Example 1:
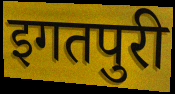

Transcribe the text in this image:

इगतपुरी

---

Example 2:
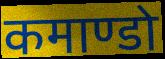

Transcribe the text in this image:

कमाण्डो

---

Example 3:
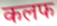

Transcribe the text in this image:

कलफ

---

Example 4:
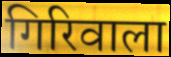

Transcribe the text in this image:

गिरिवाला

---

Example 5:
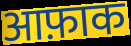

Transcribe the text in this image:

आफ़ाक